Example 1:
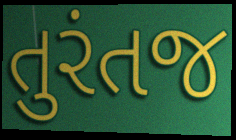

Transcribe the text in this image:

તુરંતજ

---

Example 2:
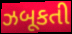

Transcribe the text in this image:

ઝબૂકતી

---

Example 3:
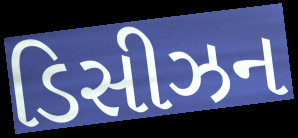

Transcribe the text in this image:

ડિસીઝન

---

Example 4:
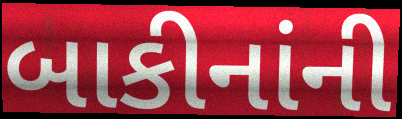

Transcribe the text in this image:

બાકીનાંની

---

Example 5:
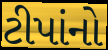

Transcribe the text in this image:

ટીપાંનો